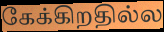
கேக்கிறதில்ல